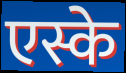
एस्के